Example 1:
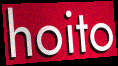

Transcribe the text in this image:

hoito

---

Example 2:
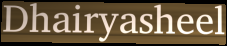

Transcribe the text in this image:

Dhairyasheel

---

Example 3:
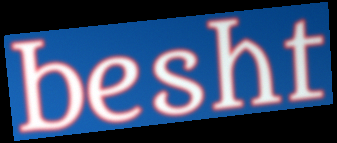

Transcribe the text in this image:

besht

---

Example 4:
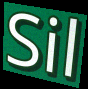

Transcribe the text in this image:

Sil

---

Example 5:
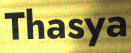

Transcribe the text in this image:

Thasya